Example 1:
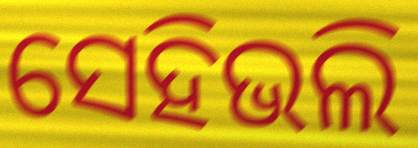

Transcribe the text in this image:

ସେହିଭଲି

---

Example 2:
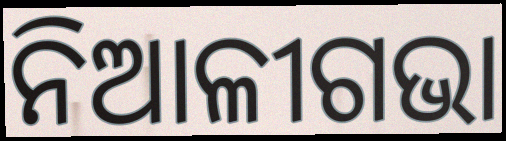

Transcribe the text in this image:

ନିଆଳୀଗଭା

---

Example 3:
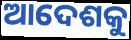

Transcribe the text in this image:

ଆଦେଶକୁ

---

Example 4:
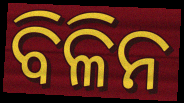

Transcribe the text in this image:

ବିଳିନ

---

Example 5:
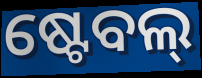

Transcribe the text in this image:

ଷ୍ଟେବଲ୍